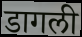
डागली